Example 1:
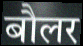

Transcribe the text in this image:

बौलर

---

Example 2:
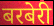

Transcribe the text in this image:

बरबेरी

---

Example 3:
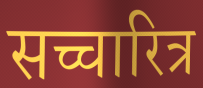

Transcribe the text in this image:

सच्चारित्र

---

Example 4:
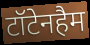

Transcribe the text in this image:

टॉटेनहैम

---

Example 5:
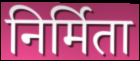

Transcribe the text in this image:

निर्मिता